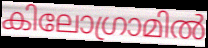
കിലോഗ്രാമിൽ